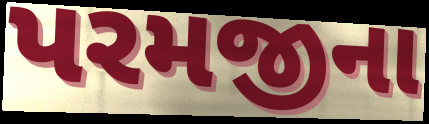
પરમજીના